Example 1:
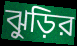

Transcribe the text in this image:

ঝুড়ির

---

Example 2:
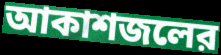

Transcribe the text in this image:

আকাশজলের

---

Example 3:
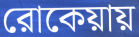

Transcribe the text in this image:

রোকেয়ায়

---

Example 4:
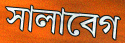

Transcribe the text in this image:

সালাবেগ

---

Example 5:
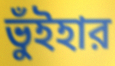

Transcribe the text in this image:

ভুঁইহার